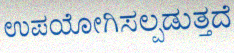
ಉಪಯೋಗಿಸಲ್ಪಡುತ್ತದೆ